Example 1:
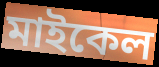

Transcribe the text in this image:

মাইকেল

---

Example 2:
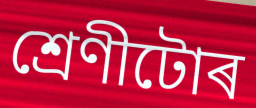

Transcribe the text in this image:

শ্ৰেণীটোৰ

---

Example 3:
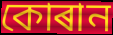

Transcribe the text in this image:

কোৰান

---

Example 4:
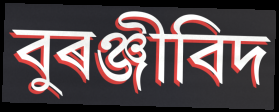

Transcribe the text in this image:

বুৰঞ্জীবিদ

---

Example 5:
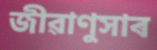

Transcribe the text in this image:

জীৱাণুসাৰ